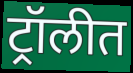
ट्रॉलीत